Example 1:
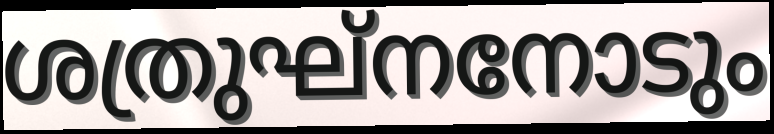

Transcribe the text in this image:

ശത്രുഘ്നനോടും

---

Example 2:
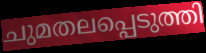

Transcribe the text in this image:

ചുമതലപ്പെടുത്തി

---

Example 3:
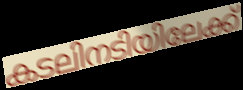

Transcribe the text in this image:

കടലിനടിയിലേക്ക്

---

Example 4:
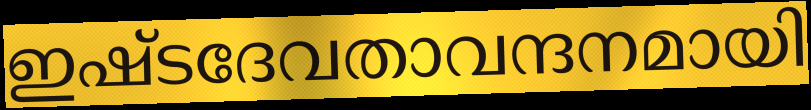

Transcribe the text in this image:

ഇഷ്ടദേവതാവന്ദനമായി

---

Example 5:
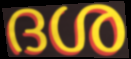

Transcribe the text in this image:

ദശ